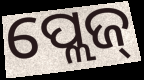
ପ୍ଲେଜ୍